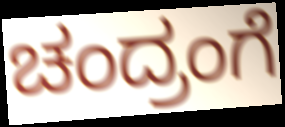
ಚಂದ್ರಂಗೆ